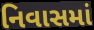
નિવાસમાં